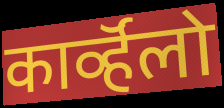
कार्व्हॅलो